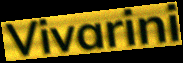
Vivarini